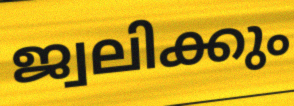
ജ്വലിക്കും